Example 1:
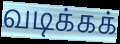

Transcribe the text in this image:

வடிக்கக்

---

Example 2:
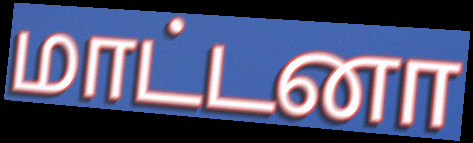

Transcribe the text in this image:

மாட்டனா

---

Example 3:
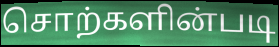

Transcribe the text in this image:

சொற்களின்படி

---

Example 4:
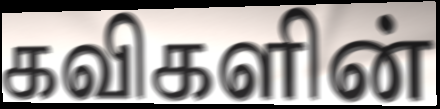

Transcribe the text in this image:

கவிகளின்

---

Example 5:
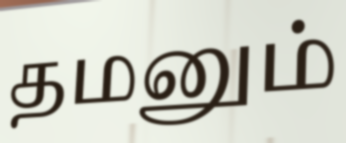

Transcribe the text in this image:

தமனும்